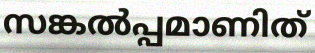
സങ്കൽപ്പമാണിത്